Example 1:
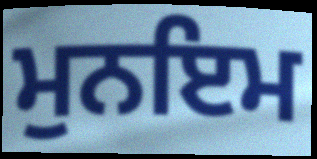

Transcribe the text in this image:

ਮੁਨਇਮ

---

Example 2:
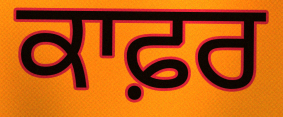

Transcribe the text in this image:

ਕਾਫ਼ਰ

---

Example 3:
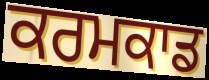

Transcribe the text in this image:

ਕਰਮਕਾਡ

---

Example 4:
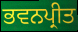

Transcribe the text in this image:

ਭਵਨਪ੍ਰੀਤ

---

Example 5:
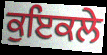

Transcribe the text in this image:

ਕੁਇਕਲੇ